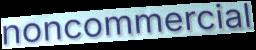
noncommercial